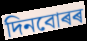
দিনবোৰৰ